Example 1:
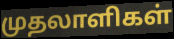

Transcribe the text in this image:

முதலாளிகள்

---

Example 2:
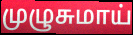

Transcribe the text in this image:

முழுசுமாய்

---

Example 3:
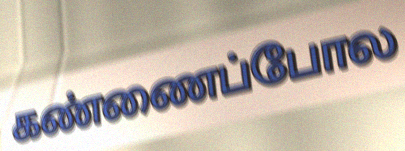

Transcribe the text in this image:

கண்ணைப்போல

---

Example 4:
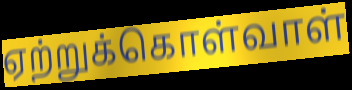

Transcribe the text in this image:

ஏற்றுக்கொள்வாள்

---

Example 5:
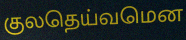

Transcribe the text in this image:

குலதெய்வமென